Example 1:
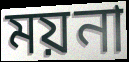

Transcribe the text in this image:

ময়না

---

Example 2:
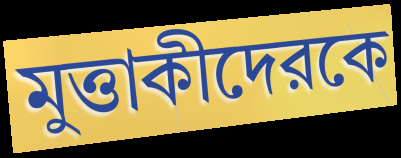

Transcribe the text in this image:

মুত্তাকীদেরকে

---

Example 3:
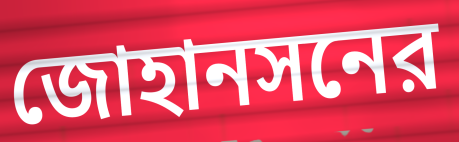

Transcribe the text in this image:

জোহানসনের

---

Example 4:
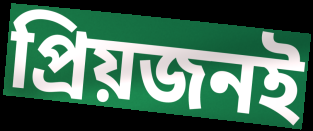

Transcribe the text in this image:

প্রিয়জনই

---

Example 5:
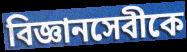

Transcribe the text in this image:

বিজ্ঞানসেবীকে